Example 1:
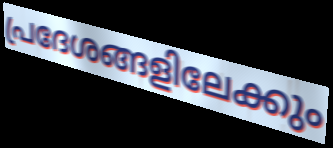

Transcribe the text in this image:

പ്രദേശങ്ങളിലേക്കും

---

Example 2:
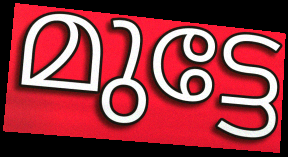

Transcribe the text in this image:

മുട്ടേ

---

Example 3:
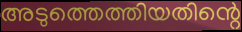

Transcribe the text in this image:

അടുത്തെത്തിയതിന്റെ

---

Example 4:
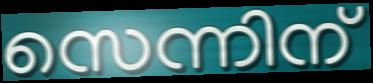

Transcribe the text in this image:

സെന്നിന്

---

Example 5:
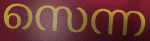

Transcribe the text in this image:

സെന്ന